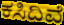
ಕಸಿದಿವೆ